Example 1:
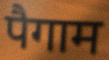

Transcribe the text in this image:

पैगाम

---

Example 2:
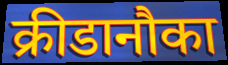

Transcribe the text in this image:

क्रीडानौका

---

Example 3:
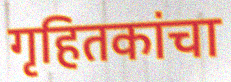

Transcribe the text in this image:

गृहितकांचा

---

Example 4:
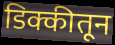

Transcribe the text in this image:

डिक्कीतून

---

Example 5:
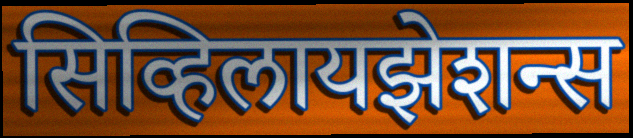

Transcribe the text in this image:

सिव्हिलायझेशन्स